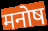
मनोष